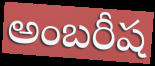
అంబరీష